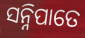
ସନ୍ନିପାତେ